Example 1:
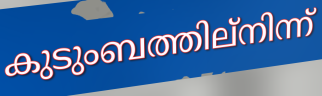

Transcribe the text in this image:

കുടുംബത്തില്നിന്ന്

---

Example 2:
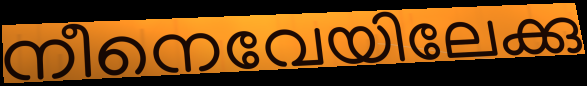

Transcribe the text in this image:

നീനെവേയിലേക്കു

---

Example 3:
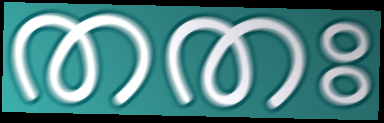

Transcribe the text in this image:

തതഃ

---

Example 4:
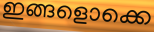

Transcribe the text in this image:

ഇങ്ങളൊക്കെ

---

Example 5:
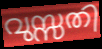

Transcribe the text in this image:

വുസ്സതി